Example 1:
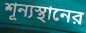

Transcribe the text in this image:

শূন্যস্থানের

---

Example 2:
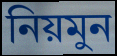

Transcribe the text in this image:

নিয়মুন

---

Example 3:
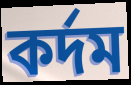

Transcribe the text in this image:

কর্দম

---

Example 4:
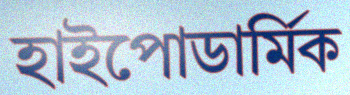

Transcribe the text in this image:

হাইপোডার্মিক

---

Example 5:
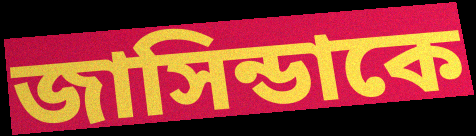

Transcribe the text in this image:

জাসিন্ডাকে